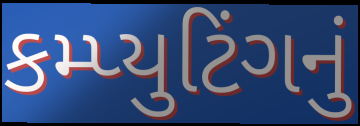
કમ્પ્યુટિંગનું